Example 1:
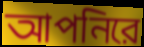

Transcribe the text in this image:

আপনিরে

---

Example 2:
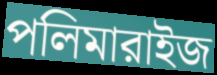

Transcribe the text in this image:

পলিমারাইজ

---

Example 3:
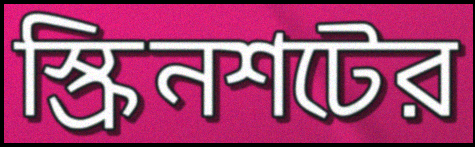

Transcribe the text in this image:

স্ক্রিনশটের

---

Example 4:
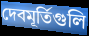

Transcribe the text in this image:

দেবমূর্তিগুলি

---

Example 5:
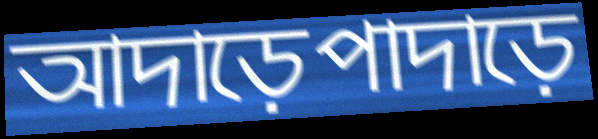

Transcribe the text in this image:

আদাড়েপাদাড়ে